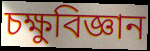
চক্ষুবিজ্ঞান